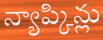
న్యాప్కిన్లు